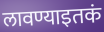
लावण्याइतकं